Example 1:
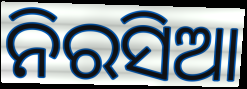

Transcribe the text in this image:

ନିରସିଆ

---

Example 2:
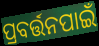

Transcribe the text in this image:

ପ୍ରବର୍ତ୍ତନପାଇଁ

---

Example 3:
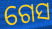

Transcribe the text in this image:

ଗେସ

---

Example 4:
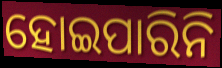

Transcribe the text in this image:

ହୋଇପାରିନି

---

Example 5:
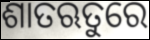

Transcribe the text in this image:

ଶାତଋତୁରେ